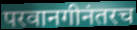
परवानगीनंतरच